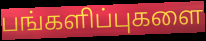
பங்களிப்புகளை